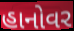
હાનોવર